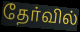
தேர்வில்